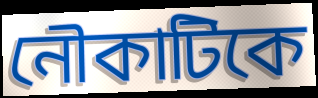
নৌকাটিকে